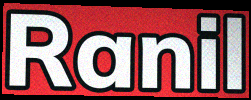
Ranil